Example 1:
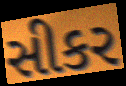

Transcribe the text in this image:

સીકર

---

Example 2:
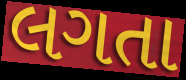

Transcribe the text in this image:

લગતા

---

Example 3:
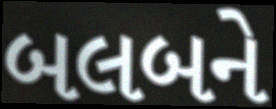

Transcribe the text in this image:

બલબને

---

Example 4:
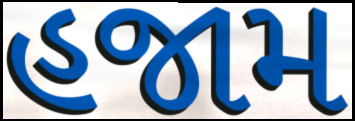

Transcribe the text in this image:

હજામ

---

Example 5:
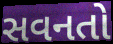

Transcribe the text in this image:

સવનતો